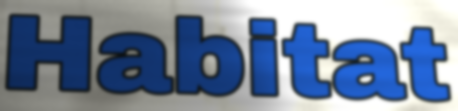
Habitat